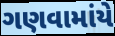
ગણવામાંયે